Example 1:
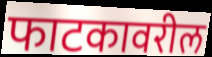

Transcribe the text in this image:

फाटकावरील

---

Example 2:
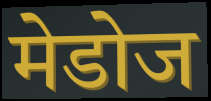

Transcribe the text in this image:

मेडोज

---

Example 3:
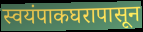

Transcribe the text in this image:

स्वयंपाकघरापासून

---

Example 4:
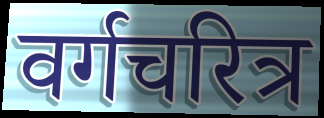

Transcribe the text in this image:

वर्गचरित्र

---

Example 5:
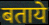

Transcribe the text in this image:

बताये